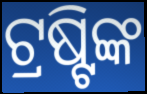
ଟ୍ରଷ୍ଟିଙ୍କ